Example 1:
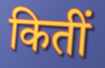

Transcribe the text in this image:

कितीं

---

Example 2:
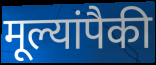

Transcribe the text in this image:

मूल्यांपैकी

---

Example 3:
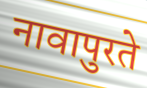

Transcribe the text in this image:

नावापुरते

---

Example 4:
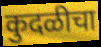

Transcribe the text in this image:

कुदळीचा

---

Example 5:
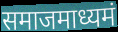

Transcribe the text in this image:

समाजमाध्यमं